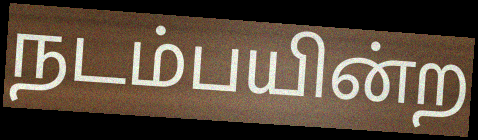
நடம்பயின்ற